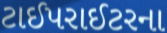
ટાઈપરાઈટરના